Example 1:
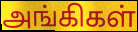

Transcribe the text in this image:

அங்கிகள்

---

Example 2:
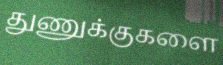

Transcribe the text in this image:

துணுக்குகளை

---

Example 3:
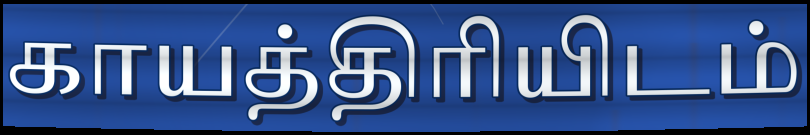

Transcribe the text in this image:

காயத்திரியிடம்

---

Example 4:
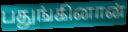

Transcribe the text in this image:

பதுங்கினான்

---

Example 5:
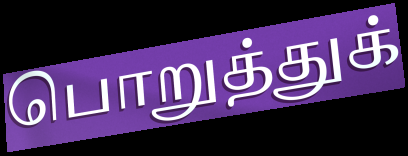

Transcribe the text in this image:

பொறுத்துக்